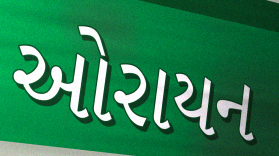
ઓરાયન